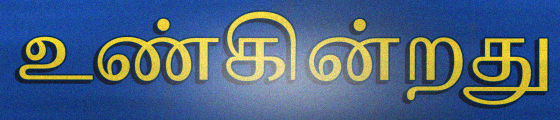
உண்கின்றது